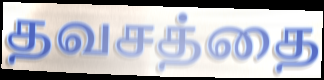
தவசத்தை